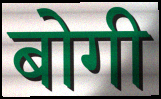
बोगी